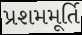
પ્રશમમૂર્તિ